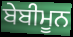
ਬੇਬੀਮੂਨ